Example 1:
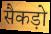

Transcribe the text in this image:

सैकड़ो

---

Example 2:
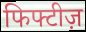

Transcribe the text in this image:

फिफ्टीज़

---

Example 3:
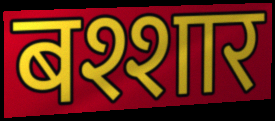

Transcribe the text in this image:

बश्शार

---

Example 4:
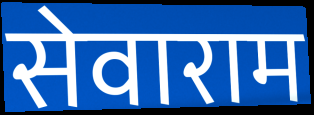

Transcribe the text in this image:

सेवाराम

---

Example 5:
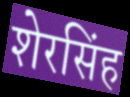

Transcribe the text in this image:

शेरसिंह